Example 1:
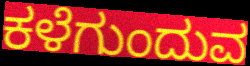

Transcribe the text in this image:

ಕಳೆಗುಂದುವ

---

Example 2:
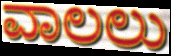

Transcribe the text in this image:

ವಾಲಲು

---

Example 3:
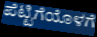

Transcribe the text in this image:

ಪೆಟ್ಟಿಗೆಯೊಳಗೆ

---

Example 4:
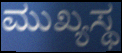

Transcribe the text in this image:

ಮುಖ್ಯಸ್ಥ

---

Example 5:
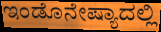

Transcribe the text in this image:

ಇಂಡೊನೇಷ್ಯಾದಲ್ಲಿ